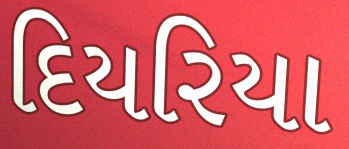
દિયરિયા